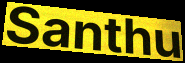
Santhu